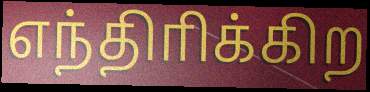
எந்திரிக்கிற